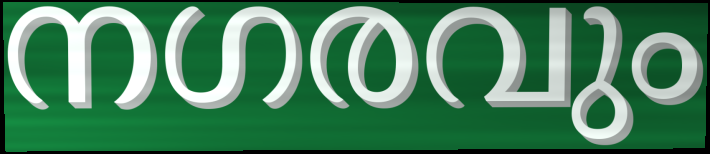
നഗരവും